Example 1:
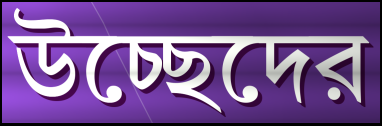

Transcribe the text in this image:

উচ্ছেদের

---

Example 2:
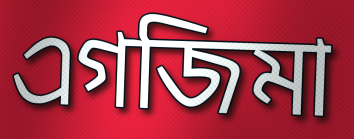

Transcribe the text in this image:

এগজিমা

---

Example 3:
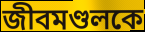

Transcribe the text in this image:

জীবমণ্ডলকে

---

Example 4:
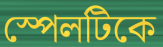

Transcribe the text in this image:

স্পেলটিকে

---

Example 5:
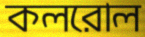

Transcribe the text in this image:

কলরোল